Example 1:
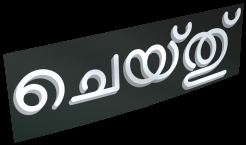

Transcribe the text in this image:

ചെയ്തു്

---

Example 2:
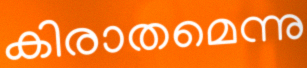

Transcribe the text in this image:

കിരാതമെന്നു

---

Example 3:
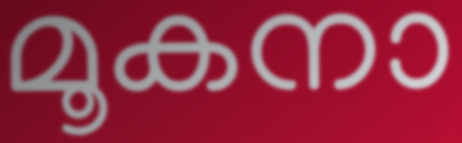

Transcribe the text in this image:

മൂകനാ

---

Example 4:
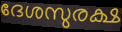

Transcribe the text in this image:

ദേശസുരക്ഷ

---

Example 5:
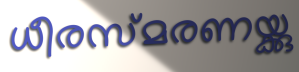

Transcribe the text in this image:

ധീരസ്മരണയ്ക്കു